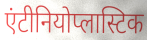
एंटीनियोप्लास्टिक